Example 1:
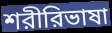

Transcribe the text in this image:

শরীরিভাষা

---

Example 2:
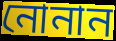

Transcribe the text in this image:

নোনান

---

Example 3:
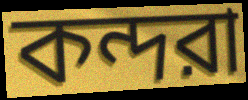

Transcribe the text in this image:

কন্দরা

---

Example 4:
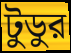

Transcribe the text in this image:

টুডুর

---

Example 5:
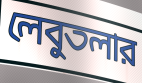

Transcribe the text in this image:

লেবুতলার